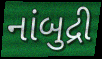
નાંબુદ્રી